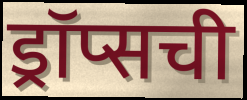
ड्रॉप्सची